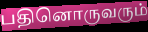
பதினொருவரும்